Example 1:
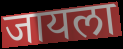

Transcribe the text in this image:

जायला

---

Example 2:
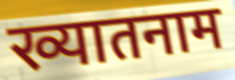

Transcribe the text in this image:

ख्यातनाम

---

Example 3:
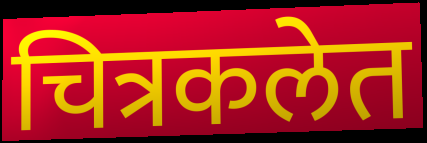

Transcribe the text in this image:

चित्रकलेत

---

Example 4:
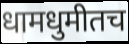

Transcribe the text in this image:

धामधुमीतच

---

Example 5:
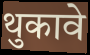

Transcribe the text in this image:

थुकावे